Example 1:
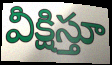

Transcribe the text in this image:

వీక్షిస్తూ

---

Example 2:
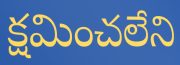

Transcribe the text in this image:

క్షమించలేని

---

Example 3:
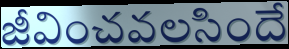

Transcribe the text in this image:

జీవించవలసిందే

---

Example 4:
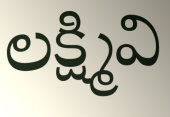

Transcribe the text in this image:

లక్ష్మివి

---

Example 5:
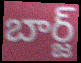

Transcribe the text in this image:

బార్జ్